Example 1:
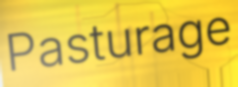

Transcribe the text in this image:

Pasturage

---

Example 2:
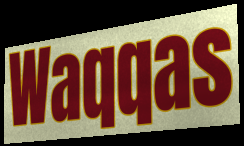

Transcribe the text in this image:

Waqqas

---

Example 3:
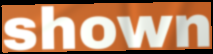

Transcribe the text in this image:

shown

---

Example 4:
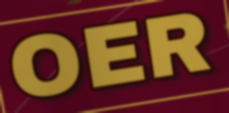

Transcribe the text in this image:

OER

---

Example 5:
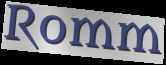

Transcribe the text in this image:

Romm